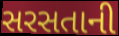
સરસતાની